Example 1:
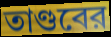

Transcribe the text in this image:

তাণ্ডবের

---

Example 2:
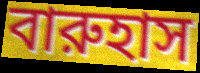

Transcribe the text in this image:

বারুহাস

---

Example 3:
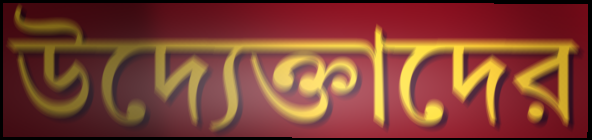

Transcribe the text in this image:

উদ্যেক্তাদের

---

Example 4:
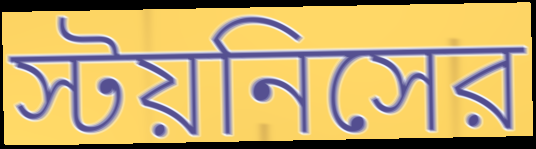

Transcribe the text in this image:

স্টয়নিসের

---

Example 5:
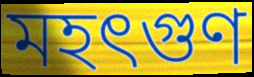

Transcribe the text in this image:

মহৎগুণ